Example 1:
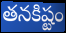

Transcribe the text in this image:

తనకిష్టం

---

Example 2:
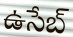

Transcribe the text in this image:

ఉసేబ్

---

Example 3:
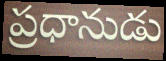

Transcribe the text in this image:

ప్రధానుడు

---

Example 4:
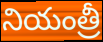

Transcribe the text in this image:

నియంత్రీ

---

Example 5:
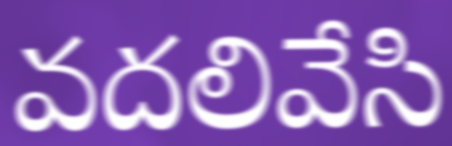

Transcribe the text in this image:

వదలివేసి